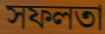
সফলতা